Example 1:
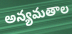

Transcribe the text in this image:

అన్యమతాల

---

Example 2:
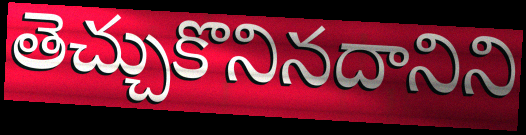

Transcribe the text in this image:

తెచ్చుకొనినదానిని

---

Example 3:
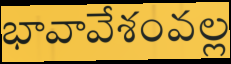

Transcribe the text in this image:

భావావేశంవల్ల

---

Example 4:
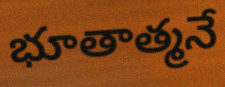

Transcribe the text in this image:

భూతాత్మనే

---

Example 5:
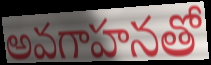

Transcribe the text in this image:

అవగాహనతో